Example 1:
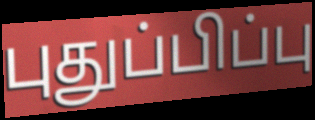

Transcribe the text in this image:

புதுப்பிப்பு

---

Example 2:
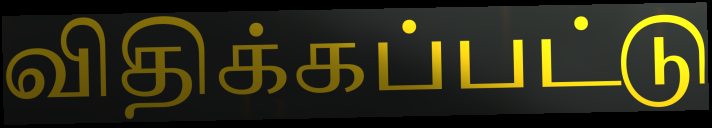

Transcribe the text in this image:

விதிக்கப்பட்டு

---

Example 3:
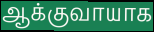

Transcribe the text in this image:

ஆக்குவாயாக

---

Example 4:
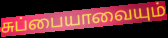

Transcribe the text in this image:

சுப்பையாவையும்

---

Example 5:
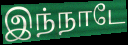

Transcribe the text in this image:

இந்நாடே